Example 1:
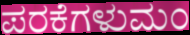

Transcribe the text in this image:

ಪರಕೆಗಳುಮಂ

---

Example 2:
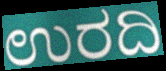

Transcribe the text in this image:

ಉರದಿ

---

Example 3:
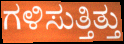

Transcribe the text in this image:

ಗಳಿಸುತ್ತಿತ್ತು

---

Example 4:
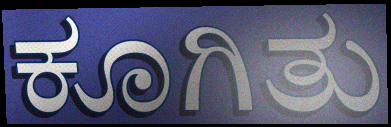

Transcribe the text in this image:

ಕೂಗಿತು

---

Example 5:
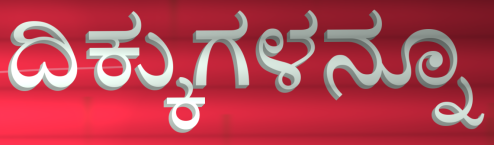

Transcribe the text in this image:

ದಿಕ್ಕುಗಳನ್ನೂ